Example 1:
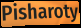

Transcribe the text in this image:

Pisharoty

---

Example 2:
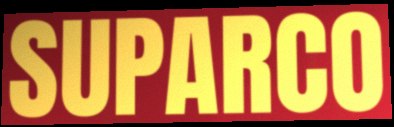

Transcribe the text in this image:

SUPARCO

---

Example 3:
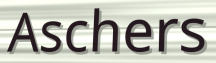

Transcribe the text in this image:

Aschers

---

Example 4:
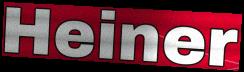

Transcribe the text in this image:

Heiner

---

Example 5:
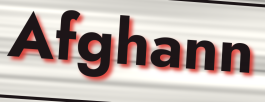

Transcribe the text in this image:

Afghann